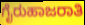
ಗೈರುಹಾಜರಾತಿ